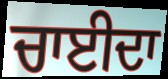
ਚਾਈਦਾ